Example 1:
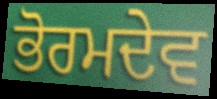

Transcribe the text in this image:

ਭੋਰਮਦੇਵ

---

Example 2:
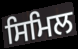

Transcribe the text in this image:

ਸਿਮਿਲ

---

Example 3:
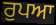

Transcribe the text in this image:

ਰੁਪਆ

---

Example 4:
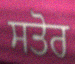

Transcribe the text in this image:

ਸਤੋਰ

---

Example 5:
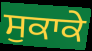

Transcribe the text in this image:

ਸੁਕਾਕੇ